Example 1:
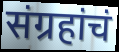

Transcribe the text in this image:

संग्रहांचं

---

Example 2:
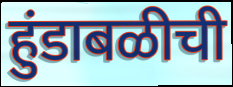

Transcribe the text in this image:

हुंडाबळीची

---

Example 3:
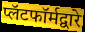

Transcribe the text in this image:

प्लॅटफॉर्मद्वारे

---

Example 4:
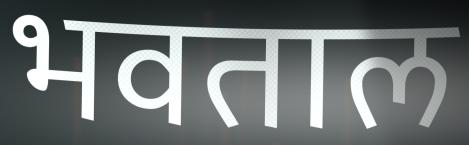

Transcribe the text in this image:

भवताल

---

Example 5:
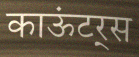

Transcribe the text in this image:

काऊंटर्स